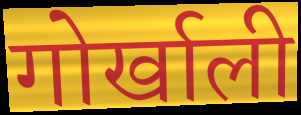
गोर्खाली